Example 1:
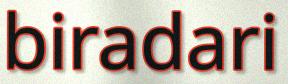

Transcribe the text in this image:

biradari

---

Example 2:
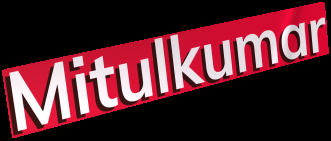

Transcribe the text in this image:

Mitulkumar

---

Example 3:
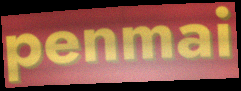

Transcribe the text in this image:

penmai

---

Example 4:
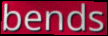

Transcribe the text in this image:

bends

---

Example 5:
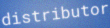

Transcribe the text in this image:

distributor